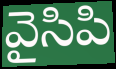
వైసిపి